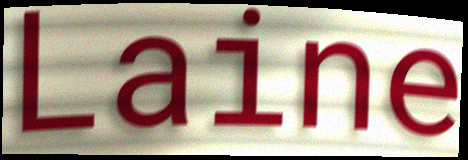
Laine